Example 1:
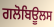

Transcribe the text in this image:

ਗਲੋਬਿਊਲਸ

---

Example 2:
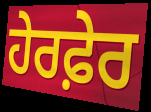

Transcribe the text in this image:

ਹੇਰਫ਼ੇਰ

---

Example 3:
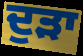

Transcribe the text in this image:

ਦੁੜਾ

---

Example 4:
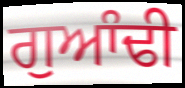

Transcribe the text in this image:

ਗੁਆੰਢੀ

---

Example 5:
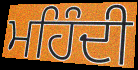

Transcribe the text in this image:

ਮਹਿੰਦੀ